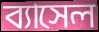
ব্যাসেল